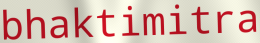
bhaktimitra